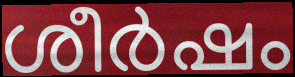
ശീർഷം